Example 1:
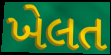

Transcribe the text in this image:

ખેલત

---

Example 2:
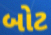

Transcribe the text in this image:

બોટ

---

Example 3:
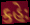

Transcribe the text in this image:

કહેઃ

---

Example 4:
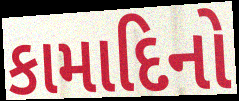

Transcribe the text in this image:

કામાદિનો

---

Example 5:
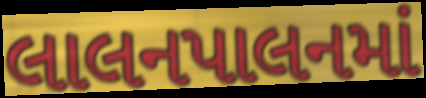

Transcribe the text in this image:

લાલનપાલનમાં